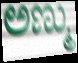
ಅಣ್ಮು